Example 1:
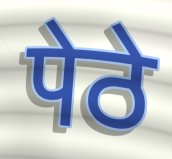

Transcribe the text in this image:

पेठे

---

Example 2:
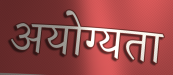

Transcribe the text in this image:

अयोग्यता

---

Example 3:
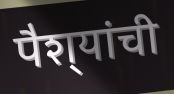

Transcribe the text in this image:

पैश्यांची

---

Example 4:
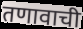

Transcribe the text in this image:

तणावाची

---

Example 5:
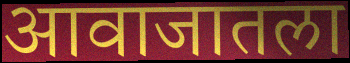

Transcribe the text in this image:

आवाजातला